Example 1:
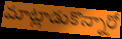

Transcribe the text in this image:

మాట్లాడుకొన్నారో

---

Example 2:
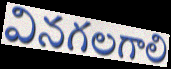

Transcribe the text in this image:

వినగలగాలి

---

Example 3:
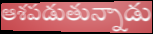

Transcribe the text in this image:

ఆశపడుతున్నాడు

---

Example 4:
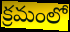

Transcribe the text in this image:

క్రమంలో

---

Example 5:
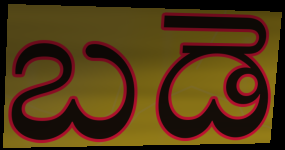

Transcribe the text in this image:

బడె